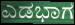
ಎಡಭಾಗ